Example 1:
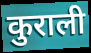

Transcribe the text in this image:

कुराली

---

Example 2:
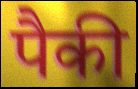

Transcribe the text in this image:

पैकी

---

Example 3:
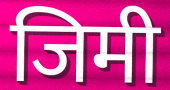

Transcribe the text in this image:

जिमी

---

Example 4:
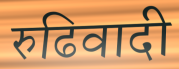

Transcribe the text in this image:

रुढिवादी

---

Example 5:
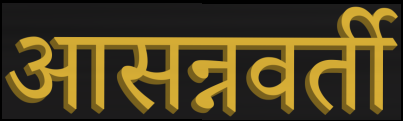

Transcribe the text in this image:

आसन्नवर्ती